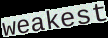
weakest